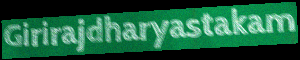
Girirajdharyastakam